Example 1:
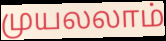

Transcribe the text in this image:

முயலலாம்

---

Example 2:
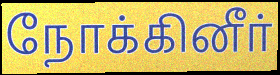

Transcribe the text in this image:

நோக்கினீர்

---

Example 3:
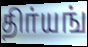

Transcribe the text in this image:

திர்யங்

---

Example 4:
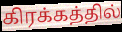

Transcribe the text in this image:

கிரக்கத்தில்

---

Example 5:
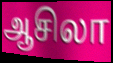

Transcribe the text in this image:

ஆசிலா